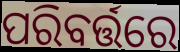
ପରିବର୍ତ୍ତରେ